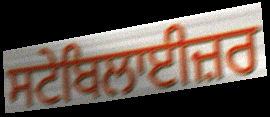
ਸਟੇਬਿਲਾਈਜ਼ਰ